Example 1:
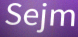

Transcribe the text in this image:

Sejm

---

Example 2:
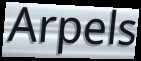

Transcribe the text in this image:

Arpels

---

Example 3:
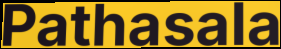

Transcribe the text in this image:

Pathasala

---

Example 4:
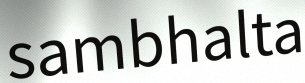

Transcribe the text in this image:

sambhalta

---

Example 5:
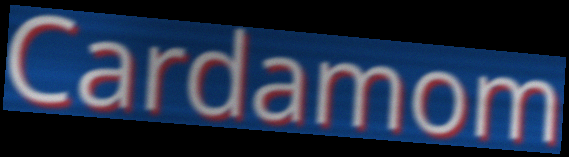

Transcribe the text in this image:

Cardamom